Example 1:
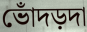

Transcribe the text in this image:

ভোঁদড়দা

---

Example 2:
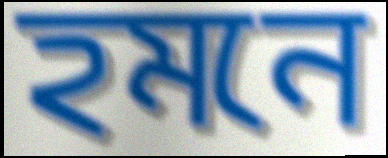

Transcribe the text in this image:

হমনে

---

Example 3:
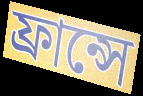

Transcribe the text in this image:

ফ্রান্সে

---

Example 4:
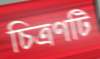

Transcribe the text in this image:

চিত্রণটি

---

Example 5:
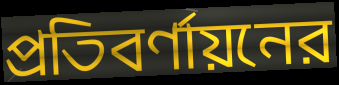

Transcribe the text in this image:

প্রতিবর্ণায়নের